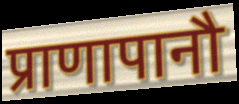
प्राणापानौ